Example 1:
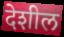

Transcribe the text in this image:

देशील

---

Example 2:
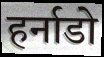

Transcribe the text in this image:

हर्नाडो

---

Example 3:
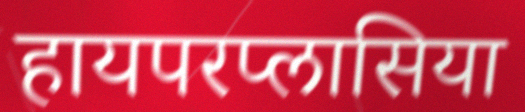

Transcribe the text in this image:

हायपरप्लासिया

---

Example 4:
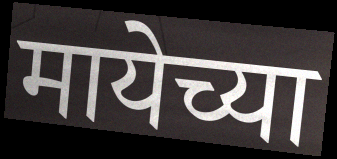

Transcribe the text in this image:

मायेच्या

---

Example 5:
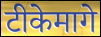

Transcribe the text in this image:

टीकेमागे